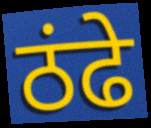
ठंढे